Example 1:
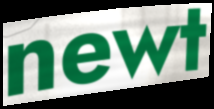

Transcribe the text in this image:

newt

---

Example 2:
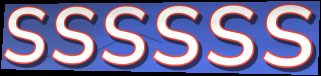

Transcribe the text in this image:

ssssss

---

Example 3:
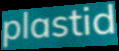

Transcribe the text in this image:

plastid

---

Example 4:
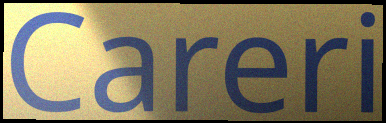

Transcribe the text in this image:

Careri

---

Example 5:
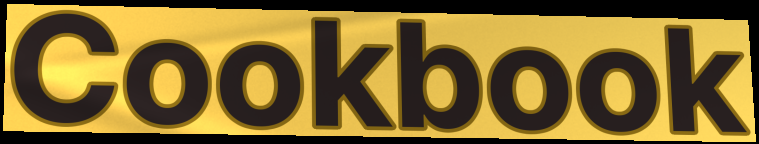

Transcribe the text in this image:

Cookbook